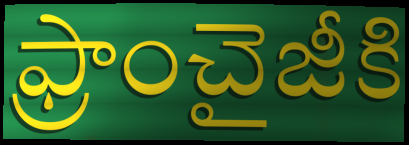
ఫ్రాంచైజీకి